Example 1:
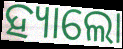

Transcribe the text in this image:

ହ୍ୟାଲୋ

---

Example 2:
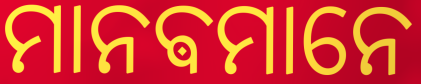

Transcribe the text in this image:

ମାନଵମାନେ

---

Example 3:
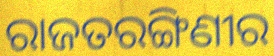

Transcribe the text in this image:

ରାଜତରଙ୍ଗିଣୀର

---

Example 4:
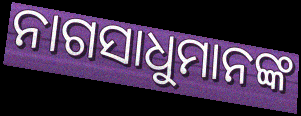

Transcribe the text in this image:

ନାଗସାଧୁମାନଙ୍କ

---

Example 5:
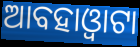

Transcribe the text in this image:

ଆବହାଓ୍ୱାଟା